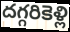
దగ్గరికెళ్లి